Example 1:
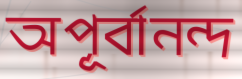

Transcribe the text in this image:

অপূর্বানন্দ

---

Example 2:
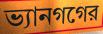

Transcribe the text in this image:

ভ্যানগগের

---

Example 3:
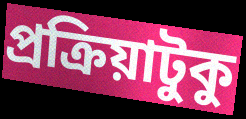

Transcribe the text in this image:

প্রক্রিয়াটুকু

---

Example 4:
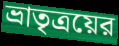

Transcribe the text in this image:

ভ্রাতৃত্রয়ের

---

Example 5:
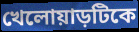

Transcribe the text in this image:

খেলোয়াড়টিকে